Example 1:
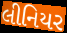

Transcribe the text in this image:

લીનિયર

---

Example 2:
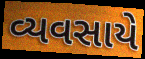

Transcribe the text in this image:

વ્યવસાયે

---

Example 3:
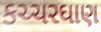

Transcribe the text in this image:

કચ્ચરઘાણ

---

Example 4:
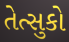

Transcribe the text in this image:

તેત્સુકો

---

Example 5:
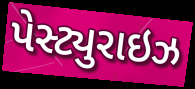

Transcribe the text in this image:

પેસ્ટ્યુરાઇઝ